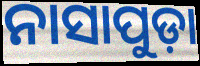
ନାସାପୁଡ଼ା